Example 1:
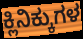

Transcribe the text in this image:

ಕ್ಲಿನಿಕ್ಕುಗಳ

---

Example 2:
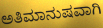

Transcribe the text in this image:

ಅತಿಮಾನುಷವಾಗಿ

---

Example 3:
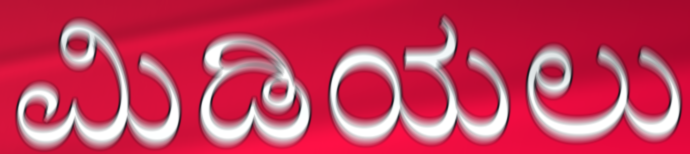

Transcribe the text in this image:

ಮಿಡಿಯಲು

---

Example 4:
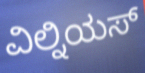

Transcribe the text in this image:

ವಿಲ್ನಿಯಸ್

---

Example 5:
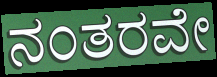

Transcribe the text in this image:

ನಂತರವೇ